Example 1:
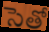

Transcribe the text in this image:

సెతో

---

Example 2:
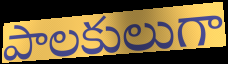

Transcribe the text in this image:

పాలకులుగా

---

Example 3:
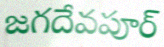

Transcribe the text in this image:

జగదేవపూర్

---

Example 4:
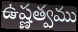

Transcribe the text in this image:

ఉష్ణత్వము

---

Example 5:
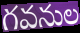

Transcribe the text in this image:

గవనుల